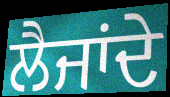
ਲੈਜਾਂਦੇ